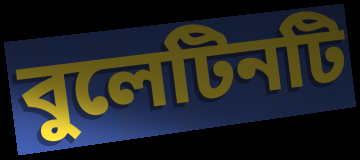
বুলেটিনটি